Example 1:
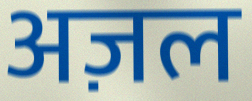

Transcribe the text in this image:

अज़ल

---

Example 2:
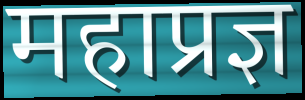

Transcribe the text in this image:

महाप्रज्ञ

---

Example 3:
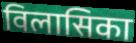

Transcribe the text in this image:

विलासिका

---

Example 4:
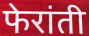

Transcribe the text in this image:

फेरांती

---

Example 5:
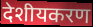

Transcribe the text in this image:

देशीयकरण